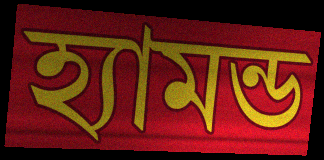
হ্যামন্ড